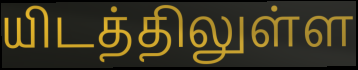
யிடத்திலுள்ள